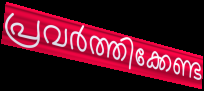
പ്രവർത്തിക്കേണ്ട